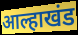
आल्हाखंड